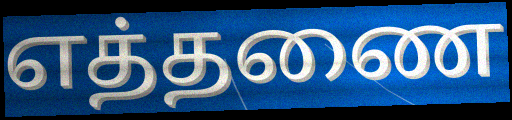
எத்தணை